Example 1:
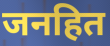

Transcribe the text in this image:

जनहित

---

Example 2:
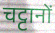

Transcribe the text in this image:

चट्टानों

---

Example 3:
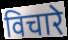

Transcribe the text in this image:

विचारे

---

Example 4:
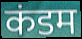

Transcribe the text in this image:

कंडम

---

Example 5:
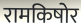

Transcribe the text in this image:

रामकिषोर